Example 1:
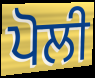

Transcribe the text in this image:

ਪੋਲੀ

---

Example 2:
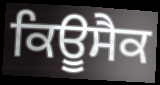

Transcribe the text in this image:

ਕਿਊਸੈਕ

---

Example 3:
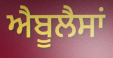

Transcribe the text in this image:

ਐਬੂਲੈਸਾਂ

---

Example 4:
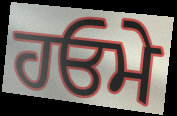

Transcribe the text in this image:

ਹਓਮੇ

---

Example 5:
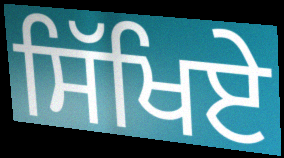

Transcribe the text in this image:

ਸਿੱਖਿਏ